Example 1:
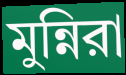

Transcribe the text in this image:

মুন্নিরা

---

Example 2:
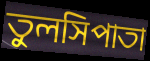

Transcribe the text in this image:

তুলসিপাতা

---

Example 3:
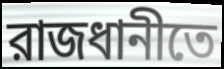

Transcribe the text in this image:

রাজধানীতে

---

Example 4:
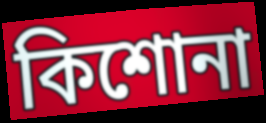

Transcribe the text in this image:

কিশোনা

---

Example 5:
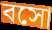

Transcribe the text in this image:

বসো